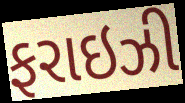
ફરાઇઝી